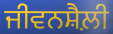
ਜੀਵਨਸ਼ੈਲ਼ੀ